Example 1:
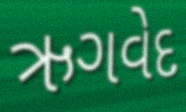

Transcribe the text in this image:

ઋગવેદ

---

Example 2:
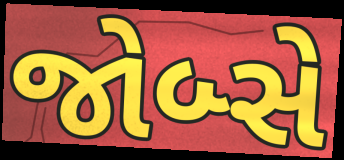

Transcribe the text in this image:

જોબ્સે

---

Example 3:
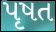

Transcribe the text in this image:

પૃષત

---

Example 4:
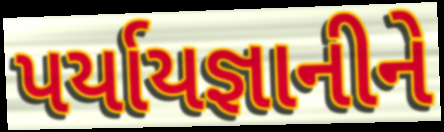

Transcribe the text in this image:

પર્યાયજ્ઞાનીને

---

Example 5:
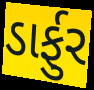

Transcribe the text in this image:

ડાર્ફુર